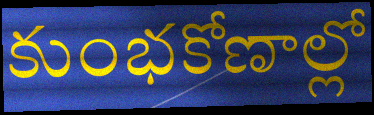
కుంభకోణాల్లో